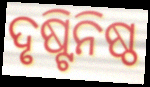
ଦୃଷ୍ଟିନିଷ୍ଠ